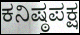
ಕನಿಷ್ಠಪಕ್ಷ